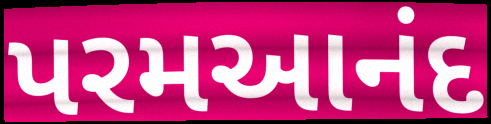
પરમઆનંદ